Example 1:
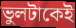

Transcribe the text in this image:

ভুলটাকেই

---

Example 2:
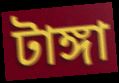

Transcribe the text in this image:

টাঙ্গা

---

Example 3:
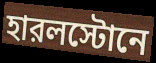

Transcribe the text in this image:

হারলস্টোনে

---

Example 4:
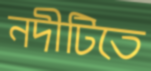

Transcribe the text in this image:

নদীটিতে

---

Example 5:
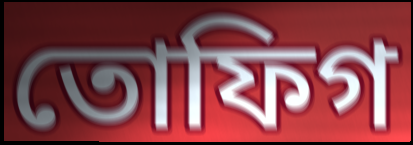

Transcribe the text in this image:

তোফিগ